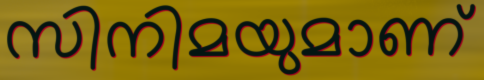
സിനിമയുമാണ്